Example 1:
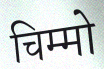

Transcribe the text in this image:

चिम्मो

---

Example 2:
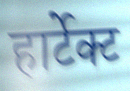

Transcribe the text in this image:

हार्टेक्ट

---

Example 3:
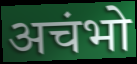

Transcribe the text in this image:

अचंभो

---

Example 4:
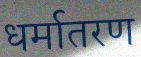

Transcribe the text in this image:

धर्मातरण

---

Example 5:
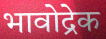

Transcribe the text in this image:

भावोद्रेक